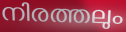
നിരത്തലും